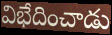
విభేదించాడు